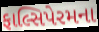
ફાલ્સિપેરમના